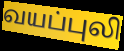
வயப்புலி